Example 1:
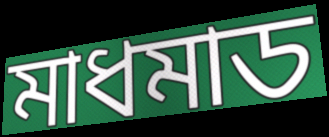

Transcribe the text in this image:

মাধমাড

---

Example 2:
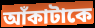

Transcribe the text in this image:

আঁকাটাকে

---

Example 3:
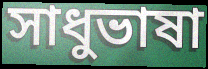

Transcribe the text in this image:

সাধুভাষা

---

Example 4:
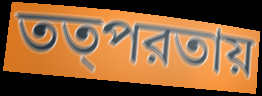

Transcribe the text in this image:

তত্পরতায়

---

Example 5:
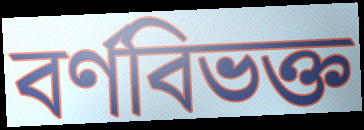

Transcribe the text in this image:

বর্ণবিভক্ত